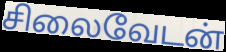
சிலைவேடன்